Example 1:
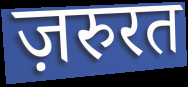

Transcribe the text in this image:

ज़रुरत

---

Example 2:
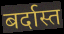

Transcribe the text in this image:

बर्दास्त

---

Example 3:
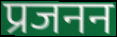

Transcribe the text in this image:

प्रजनन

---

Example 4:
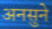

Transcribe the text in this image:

अनसुने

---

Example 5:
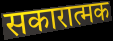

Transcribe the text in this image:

सकारात्‍मक